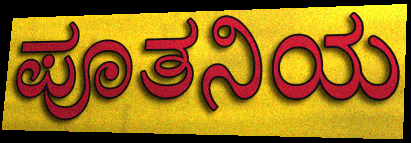
ಪೂತನಿಯ